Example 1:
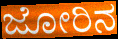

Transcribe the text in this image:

ಜೋರಿನ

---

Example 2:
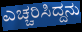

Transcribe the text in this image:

ಎಚ್ಚರಿಸಿದ್ದನು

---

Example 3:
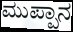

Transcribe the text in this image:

ಮುಪ್ಪಾನ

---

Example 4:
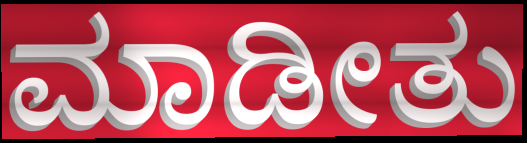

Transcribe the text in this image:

ಮಾಡೀತು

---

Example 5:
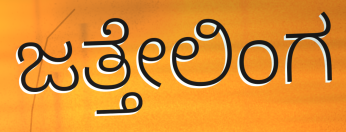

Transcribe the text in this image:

ಜತ್ತೇಲಿಂಗ